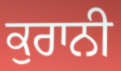
ਕੁਰਾਨੀ